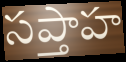
సప్తాహ